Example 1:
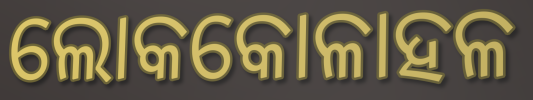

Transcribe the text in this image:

ଲୋକକୋଳାହଳ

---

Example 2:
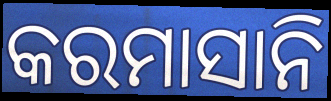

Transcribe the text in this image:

କରମାସାନି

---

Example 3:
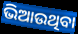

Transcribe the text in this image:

ଭିଆଉଥିବା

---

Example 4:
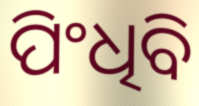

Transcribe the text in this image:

ପିଂଧିବି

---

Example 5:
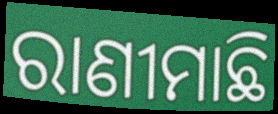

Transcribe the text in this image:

ରାଣୀମାଛି